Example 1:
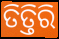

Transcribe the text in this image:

ତିତ୍ତିରି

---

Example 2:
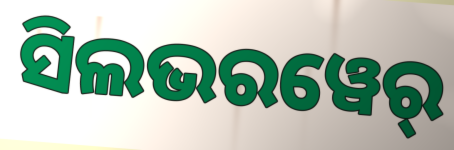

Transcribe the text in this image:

ସିଲଭରୱେର୍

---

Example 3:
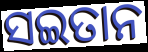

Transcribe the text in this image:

ସଇତାନ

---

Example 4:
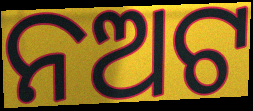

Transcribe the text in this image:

ନଅଟ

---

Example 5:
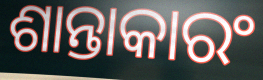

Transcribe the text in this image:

ଶାନ୍ତାକାରଂ